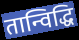
तान्विद्धि